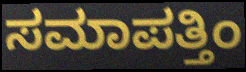
ಸಮಾಪತ್ತಿಂ